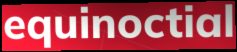
equinoctial